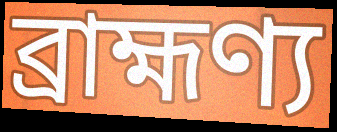
ব্ৰাহ্মণ্য